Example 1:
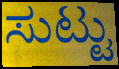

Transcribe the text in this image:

ಸುಟ್ಟು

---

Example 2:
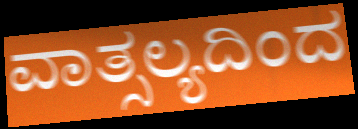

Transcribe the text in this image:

ವಾತ್ಸಲ್ಯದಿಂದ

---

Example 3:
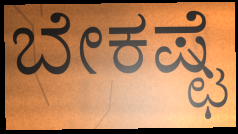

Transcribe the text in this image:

ಬೇಕಷ್ಟೆ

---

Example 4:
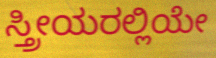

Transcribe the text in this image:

ಸ್ತ್ರೀಯರಲ್ಲಿಯೇ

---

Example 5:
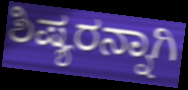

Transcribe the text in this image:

ಶಿಷ್ಯರನ್ನಾಗಿ